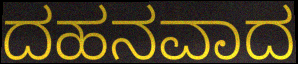
ದಹನವಾದ